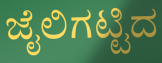
ಜೈಲಿಗಟ್ಟಿದ